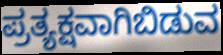
ಪ್ರತ್ಯಕ್ಷವಾಗಿಬಿಡುವ